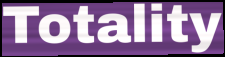
Totality